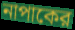
নাপাকের